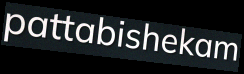
pattabishekam